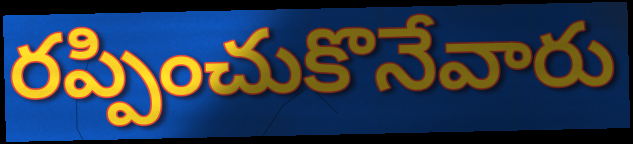
రప్పించుకొనేవారు